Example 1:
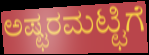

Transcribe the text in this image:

ಅಷ್ಟರಮಟ್ಟಿಗೆ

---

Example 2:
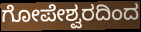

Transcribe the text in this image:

ಗೋಪೇಶ್ವರದಿಂದ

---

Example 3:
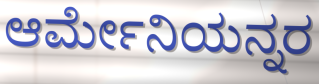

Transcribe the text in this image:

ಆರ್ಮೇನಿಯನ್ನರ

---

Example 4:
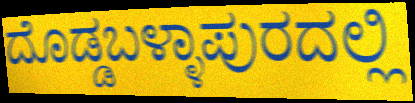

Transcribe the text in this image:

ದೊಡ್ಡಬಳ್ಳಾಪುರದಲ್ಲಿ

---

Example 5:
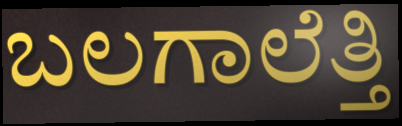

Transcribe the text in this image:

ಬಲಗಾಲೆತ್ತಿ